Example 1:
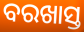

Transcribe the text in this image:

ବରଖାସ୍ତ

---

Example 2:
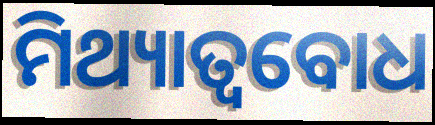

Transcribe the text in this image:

ମିଥ୍ୟାତ୍ୱବୋଧ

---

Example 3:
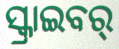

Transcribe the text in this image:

ସ୍କ୍ରାଇବର୍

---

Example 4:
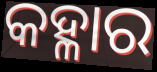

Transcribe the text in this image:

କହ୍ଳାର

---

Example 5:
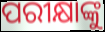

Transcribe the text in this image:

ପରୀକ୍ଷାଙ୍କୁ